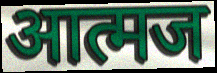
आत्मज